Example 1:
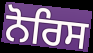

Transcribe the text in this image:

ਨੋਰਿਸ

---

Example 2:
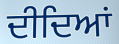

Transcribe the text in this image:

ਦੀਦਿਆਂ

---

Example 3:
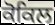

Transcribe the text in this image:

ਕੋਕਿਲ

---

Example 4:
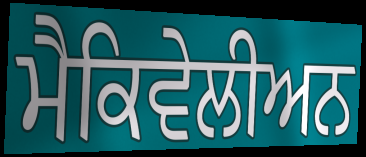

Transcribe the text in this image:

ਮੈਕਿਵੇਲੀਅਨ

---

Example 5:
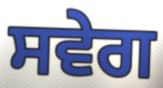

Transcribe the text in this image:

ਸਵੇਗ